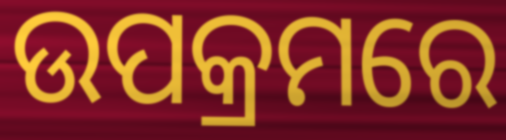
ଉପକ୍ରମରେ